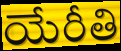
యేరీతి